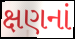
ક્ષણનાં